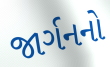
જાર્ગનનો